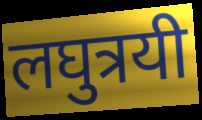
लघुत्रयी